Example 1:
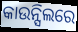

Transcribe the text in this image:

କାଉନ୍ସିଲରେ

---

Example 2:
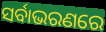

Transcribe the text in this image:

ସର୍ବାଭରଣରେ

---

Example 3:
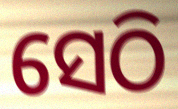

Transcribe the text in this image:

ସେଠି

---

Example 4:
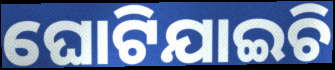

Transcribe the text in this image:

ଘୋଟିଯାଇଚି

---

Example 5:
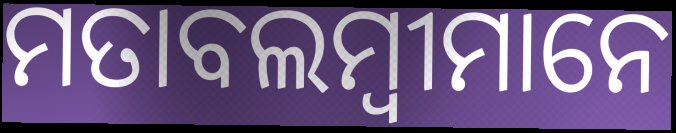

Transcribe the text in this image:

ମତାବଲମ୍ବୀମାନେ